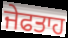
ਜੇਫਤਾਹ